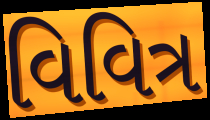
વિવિત્ર